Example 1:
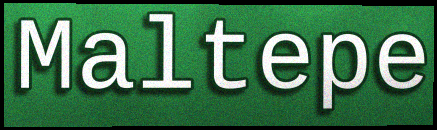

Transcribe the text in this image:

Maltepe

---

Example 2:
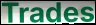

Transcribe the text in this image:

Trades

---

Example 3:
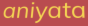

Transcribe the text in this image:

aniyata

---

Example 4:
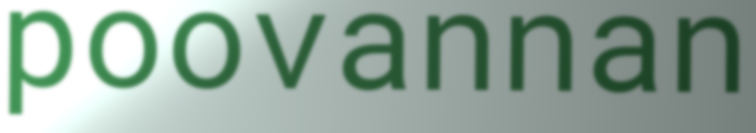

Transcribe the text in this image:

poovannan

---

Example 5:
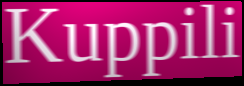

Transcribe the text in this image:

Kuppili